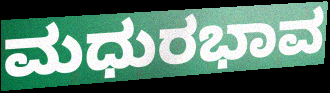
ಮಧುರಭಾವ